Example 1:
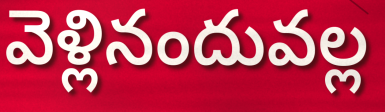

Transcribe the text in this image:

వెళ్లినందువల్ల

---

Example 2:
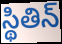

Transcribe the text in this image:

స్థితిన్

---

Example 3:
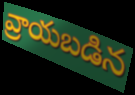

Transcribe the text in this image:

వ్రాయబడిన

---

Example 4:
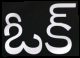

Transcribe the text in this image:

ఓక్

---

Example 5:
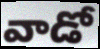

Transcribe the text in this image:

వాడో